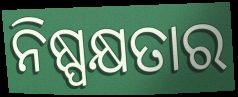
ନିଷ୍ପକ୍ଷତାର